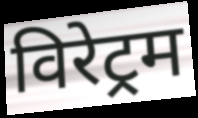
विरेट्रम